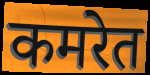
कमरेत